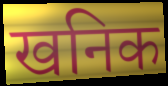
खनिक